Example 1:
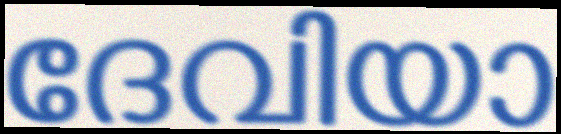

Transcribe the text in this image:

ദേവിയാ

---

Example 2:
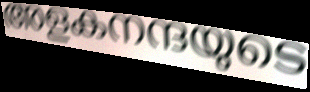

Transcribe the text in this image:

അളകനന്ദയുടെ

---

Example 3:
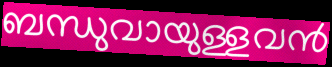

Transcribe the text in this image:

ബന്ധുവായുള്ളവൻ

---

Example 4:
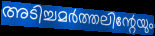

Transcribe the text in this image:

അടിച്ചമർത്തലിന്റേയും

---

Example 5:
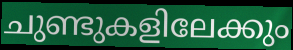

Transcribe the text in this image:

ചുണ്ടുകളിലേക്കും